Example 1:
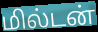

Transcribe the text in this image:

மில்டன்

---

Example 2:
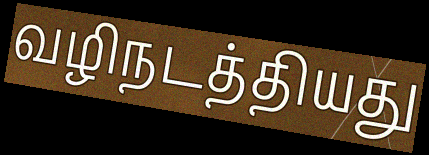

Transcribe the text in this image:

வழிநடத்தியது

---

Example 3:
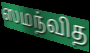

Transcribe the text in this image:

ஸமந்வித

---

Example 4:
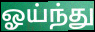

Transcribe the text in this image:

ஓய்ந்து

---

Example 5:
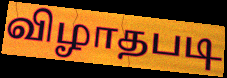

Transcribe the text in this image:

விழாதபடி